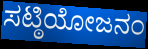
ಸಟ್ಠಿಯೋಜನಂ